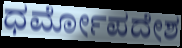
ಧರ್ಮೋಪದೇಶ